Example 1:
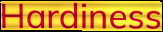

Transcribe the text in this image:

Hardiness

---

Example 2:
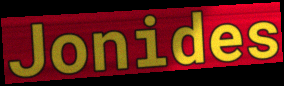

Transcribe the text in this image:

Jonides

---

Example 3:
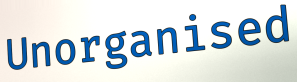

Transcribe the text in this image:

Unorganised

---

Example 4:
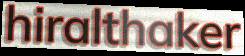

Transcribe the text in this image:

hiralthaker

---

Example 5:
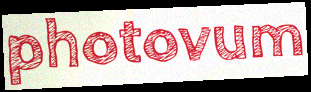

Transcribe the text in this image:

photovum